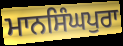
ਮਾਨਸਿੰਘਪੁਰਾ